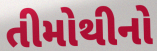
તીમોથીનો